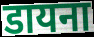
डायना